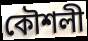
কৌশলী